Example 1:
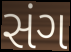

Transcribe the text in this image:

સંગ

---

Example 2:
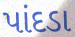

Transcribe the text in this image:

પાંદડા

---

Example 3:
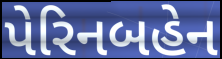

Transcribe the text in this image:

પેરિનબહેન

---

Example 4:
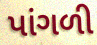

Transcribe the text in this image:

પાંગળી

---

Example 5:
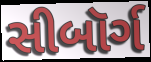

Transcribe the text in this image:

સીબૉર્ગ